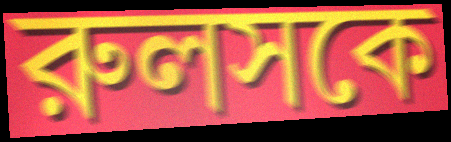
রুলসকে